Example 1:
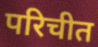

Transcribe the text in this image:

परिचीत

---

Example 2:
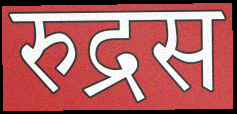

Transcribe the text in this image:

रुद्रस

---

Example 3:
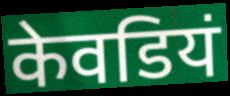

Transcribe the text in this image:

केवडियं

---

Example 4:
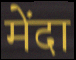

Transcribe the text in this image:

मेंदा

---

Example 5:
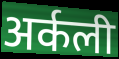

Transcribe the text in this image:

अर्कली